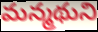
మన్మథుని